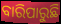
ବାରିପାରୁଛି